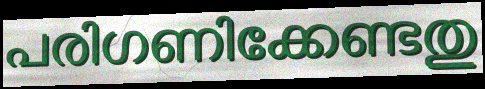
പരിഗണിക്കേണ്ടതു